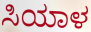
ಸಿಯಾಳ